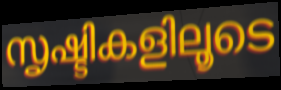
സൃഷ്ടികളിലൂടെ